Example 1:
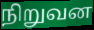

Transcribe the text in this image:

நிறுவன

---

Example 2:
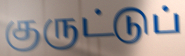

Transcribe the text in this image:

குருட்டுப்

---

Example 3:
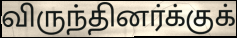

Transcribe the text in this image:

விருந்தினர்க்குக்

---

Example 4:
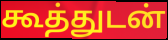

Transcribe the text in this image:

கூத்துடன்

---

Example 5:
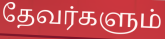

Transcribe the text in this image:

தேவர்களும்